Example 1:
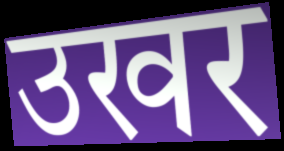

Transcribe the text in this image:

उखर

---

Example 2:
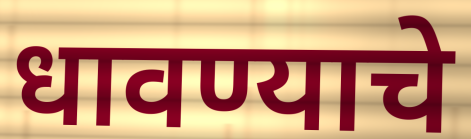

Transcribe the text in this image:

धावण्याचे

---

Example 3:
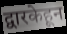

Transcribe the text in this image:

द्वारकेहून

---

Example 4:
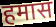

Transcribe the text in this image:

हमास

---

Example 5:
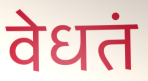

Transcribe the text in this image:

वेधतं